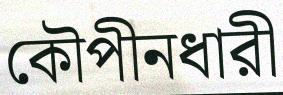
কৌপীনধারী